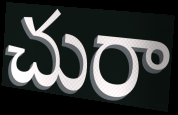
చురా